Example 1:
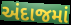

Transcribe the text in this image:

અંદાજમાં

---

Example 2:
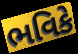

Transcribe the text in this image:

ભવિકે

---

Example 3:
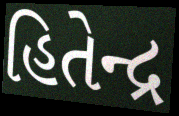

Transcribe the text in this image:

હિતેન્દ્ર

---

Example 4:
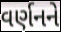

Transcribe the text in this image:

વર્ણનને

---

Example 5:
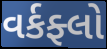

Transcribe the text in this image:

વર્કફ્લો